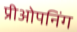
प्रीओपनिंग